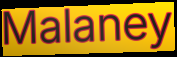
Malaney